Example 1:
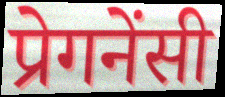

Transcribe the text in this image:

प्रेगनेंसी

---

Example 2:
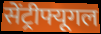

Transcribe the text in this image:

सेंट्रीफ्यूगल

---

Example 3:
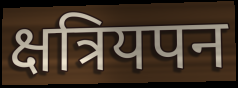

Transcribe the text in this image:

क्षत्रियपन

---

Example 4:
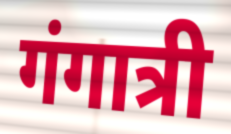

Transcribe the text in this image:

गंगात्री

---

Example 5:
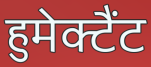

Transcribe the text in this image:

हुमेक्टैंट